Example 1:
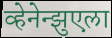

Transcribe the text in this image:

व्हेनेन्झुएला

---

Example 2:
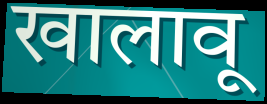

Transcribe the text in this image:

खालावू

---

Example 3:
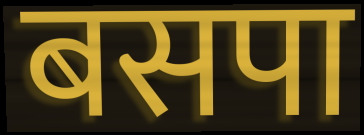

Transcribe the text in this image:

बसपा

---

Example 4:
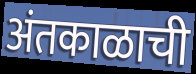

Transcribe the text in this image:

अंतकाळाची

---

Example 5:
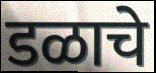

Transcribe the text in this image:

डळाचे